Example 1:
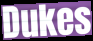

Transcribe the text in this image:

Dukes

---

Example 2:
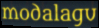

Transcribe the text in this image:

modalagu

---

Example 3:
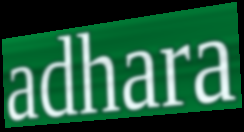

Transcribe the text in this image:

adhara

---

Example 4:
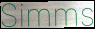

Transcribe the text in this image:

Simms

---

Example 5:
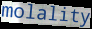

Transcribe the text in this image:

molality